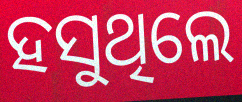
ହସୁଥିଲେ